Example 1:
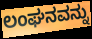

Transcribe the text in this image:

ಲಂಘನವನ್ನು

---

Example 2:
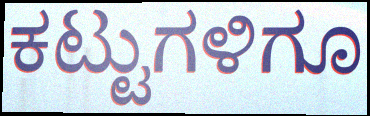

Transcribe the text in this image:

ಕಟ್ಟುಗಳಿಗೂ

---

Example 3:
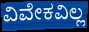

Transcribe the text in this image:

ವಿವೇಕವಿಲ್ಲ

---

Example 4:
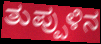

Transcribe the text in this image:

ತುಪ್ಪುಳಿನ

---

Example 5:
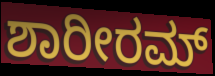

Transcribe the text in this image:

ಶಾರೀರಮ್